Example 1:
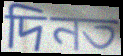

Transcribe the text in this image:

দিনত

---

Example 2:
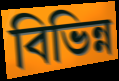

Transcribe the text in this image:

বিভিন্ন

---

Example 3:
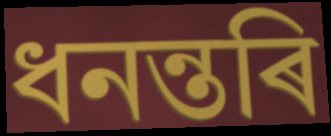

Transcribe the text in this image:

ধনন্তৰি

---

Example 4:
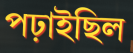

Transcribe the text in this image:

পঢ়াইছিল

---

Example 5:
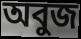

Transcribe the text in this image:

অবুজ